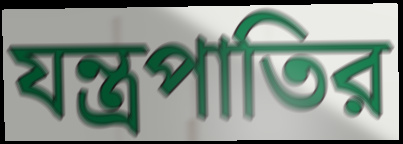
যন্ত্রপাতির